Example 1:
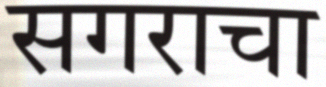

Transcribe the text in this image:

सगराचा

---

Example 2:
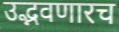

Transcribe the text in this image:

उद्भवणारच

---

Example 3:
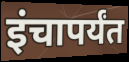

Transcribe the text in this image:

इंचापर्यंत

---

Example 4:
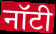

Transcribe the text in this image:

नॉटी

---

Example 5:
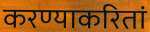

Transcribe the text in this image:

करण्याकरितां